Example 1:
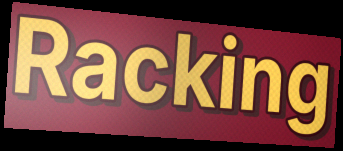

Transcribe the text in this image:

Racking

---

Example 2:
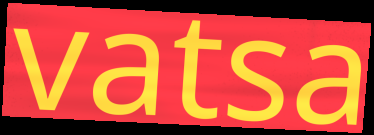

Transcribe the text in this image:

vatsa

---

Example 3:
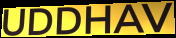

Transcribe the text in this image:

UDDHAV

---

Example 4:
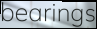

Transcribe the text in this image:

bearings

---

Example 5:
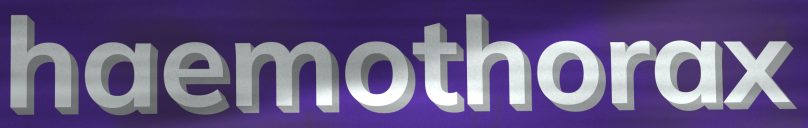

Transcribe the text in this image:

haemothorax